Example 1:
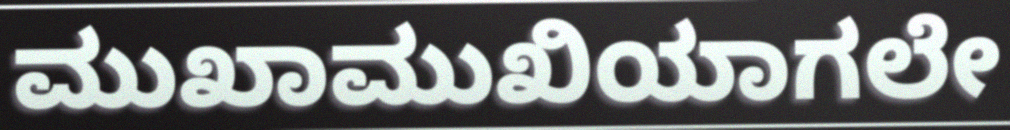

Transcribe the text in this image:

ಮುಖಾಮುಖಿಯಾಗಲೇ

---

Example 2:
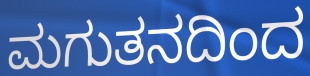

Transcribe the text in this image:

ಮಗುತನದಿಂದ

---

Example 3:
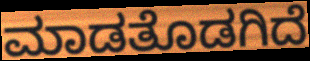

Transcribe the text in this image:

ಮಾಡತೊಡಗಿದೆ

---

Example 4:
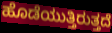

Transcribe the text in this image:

ಹೊಡೆಯುತ್ತಿರುತ್ತದೆ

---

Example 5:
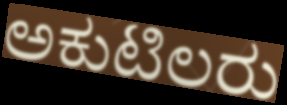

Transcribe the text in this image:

ಅಕುಟಿಲರು